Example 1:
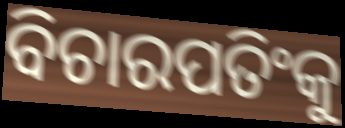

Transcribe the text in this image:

ବିଚାରପତିଂକୁ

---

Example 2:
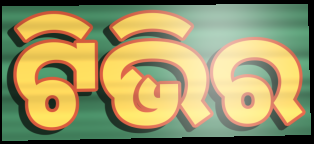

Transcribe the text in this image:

ଟିଭିର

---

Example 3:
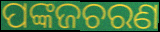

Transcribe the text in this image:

ପଙ୍କଜଚରଣ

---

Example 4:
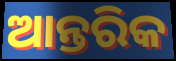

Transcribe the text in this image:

ଆନ୍ତରିକ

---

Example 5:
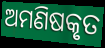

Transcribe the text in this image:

ଅମଣିଷକୃତ